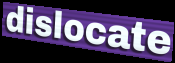
dislocate